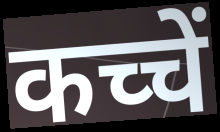
कच्चें